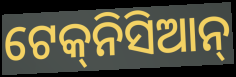
ଟେକ୍‌ନିସିଆନ୍